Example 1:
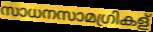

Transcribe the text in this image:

സാധനസാമഗ്രികള്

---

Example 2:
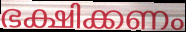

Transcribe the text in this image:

ഭക്ഷിക്കണം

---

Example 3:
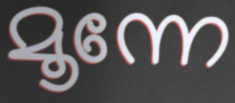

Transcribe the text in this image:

മൂന്നേ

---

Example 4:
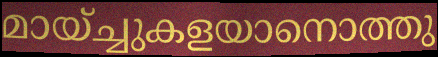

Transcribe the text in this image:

മായ്ച്ചുകളയാനൊത്തു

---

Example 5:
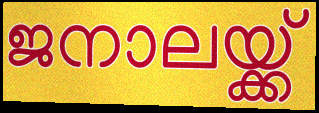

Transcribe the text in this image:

ജനാലയ്ക്ക്